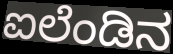
ಐಲೆಂಡಿನ